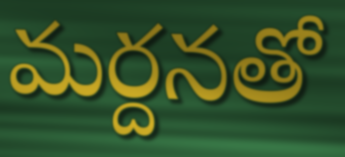
మర్దనతో